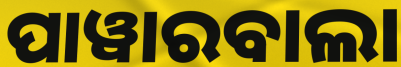
ପାୱାରବାଲା